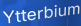
Ytterbium